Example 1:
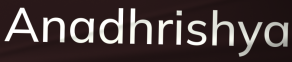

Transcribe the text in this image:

Anadhrishya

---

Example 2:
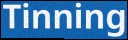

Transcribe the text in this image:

Tinning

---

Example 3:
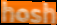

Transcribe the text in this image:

hosh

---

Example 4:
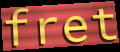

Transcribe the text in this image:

fret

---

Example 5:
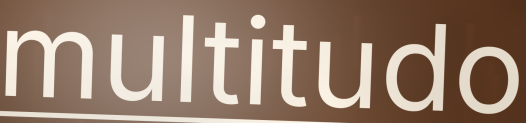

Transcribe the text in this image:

multitudo